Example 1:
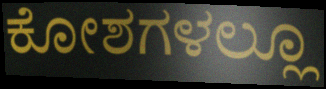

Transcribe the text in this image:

ಕೋಶಗಳಲ್ಲೂ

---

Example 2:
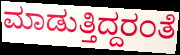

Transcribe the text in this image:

ಮಾಡುತ್ತಿದ್ದರಂತೆ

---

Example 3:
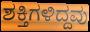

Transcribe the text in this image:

ಶಕ್ತಿಗಳಿದ್ದವು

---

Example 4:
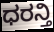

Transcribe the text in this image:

ಧರನ್ತಿ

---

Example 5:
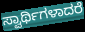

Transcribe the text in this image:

ಸ್ವಾರ್ಥಿಗಳಾದರೆ